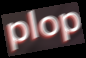
plop